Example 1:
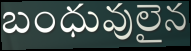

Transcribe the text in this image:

బంధువులైన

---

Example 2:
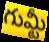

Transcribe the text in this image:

గుమ్టీ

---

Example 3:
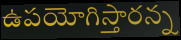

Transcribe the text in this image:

ఉపయోగిస్తారన్న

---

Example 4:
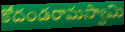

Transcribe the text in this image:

కోదండరామస్వామి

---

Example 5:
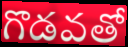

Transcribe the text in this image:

గొడవతో